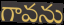
గావను